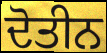
ਦੋਤੀਨ